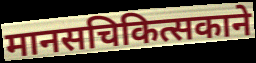
मानसचिकित्सकाने